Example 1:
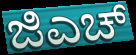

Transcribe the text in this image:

ಜಿಎಚ್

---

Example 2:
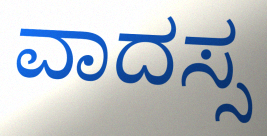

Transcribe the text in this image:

ವಾದಸ್ಸ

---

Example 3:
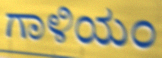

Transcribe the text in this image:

ಗಾಳಿಯಂ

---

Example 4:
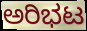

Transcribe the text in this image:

ಅರಿಭಟ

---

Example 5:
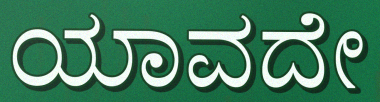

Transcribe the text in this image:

ಯಾವದೇ